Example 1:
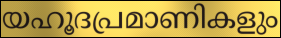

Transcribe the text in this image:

യഹൂദപ്രമാണികളും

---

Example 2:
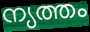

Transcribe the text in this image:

ന്യത്തം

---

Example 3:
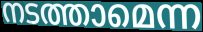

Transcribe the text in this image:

നടത്താമെന്ന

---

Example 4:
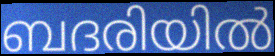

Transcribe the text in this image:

ബദരിയിൽ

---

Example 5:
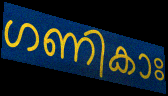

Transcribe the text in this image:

ഗണികാഃ